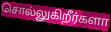
சொல்லுகிறீர்களா